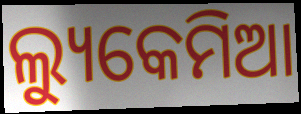
ଲ୍ୟୁକେମିଆ